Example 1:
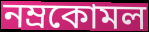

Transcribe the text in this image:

নম্রকোমল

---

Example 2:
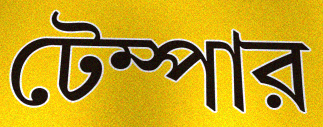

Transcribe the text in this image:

টেম্পার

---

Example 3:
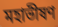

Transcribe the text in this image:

মহাভীষণ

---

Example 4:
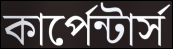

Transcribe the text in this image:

কার্পেন্টার্স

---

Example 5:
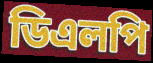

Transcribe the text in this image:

ডিএলপি